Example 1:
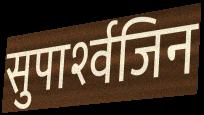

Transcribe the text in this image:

सुपार्श्वजिन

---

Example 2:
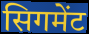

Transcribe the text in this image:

सिगमेंट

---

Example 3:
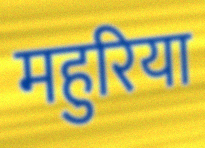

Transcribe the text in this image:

महुरिया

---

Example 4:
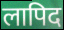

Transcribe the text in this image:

लापिद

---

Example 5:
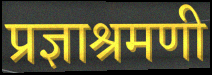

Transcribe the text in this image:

प्रज्ञाश्रमणी